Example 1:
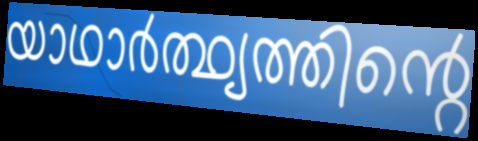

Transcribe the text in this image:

യാഥാർത്ഥ്യത്തിന്റെ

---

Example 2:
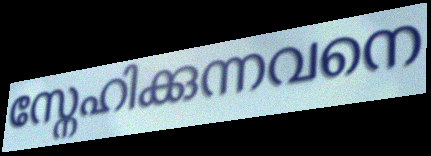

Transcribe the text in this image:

സ്നേഹിക്കുന്നവനെ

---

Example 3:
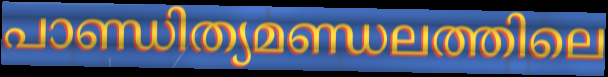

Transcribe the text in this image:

പാണ്ഡിത്യമണ്ഡലത്തിലെ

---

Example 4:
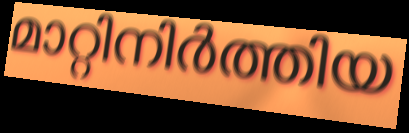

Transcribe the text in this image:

മാറ്റിനിർത്തിയ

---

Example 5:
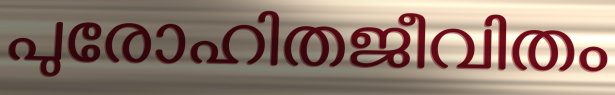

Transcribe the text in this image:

പുരോഹിതജീവിതം